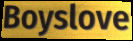
Boyslove